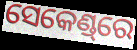
ସେକେଣ୍ଡ୍‌ରେ